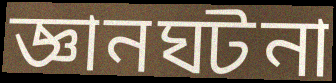
জ্ঞানঘটনা